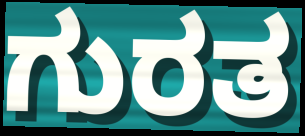
ಗುರತ